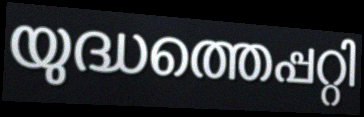
യുദ്ധത്തെപ്പറ്റി